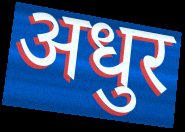
अधुर